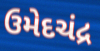
ઉમેદચંદ્ર